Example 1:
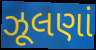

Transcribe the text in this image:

ઝૂલણાં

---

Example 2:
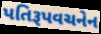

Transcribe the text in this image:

પતિરૂપવચનેન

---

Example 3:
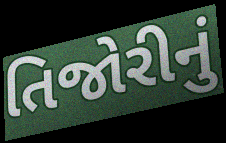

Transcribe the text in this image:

તિજોરીનું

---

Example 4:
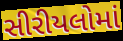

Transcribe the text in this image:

સીરીયલોમાં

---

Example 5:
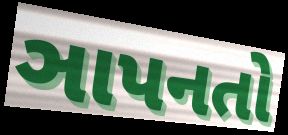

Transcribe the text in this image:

ઞાપનતો